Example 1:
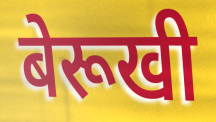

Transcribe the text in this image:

बेरूखी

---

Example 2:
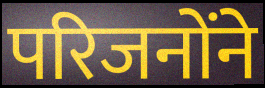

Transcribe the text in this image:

परिजनोंने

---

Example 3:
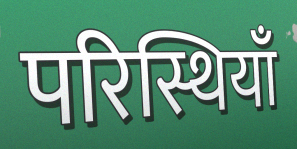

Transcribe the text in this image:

परिस्थियाँ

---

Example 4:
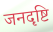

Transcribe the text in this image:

जनदृष्टि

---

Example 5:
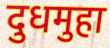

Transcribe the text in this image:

दुधमुहा